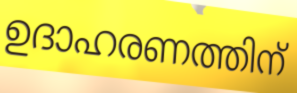
ഉദാഹരണത്തിന്